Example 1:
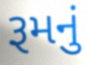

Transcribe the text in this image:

રૂમનું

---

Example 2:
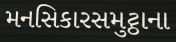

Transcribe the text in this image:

મનસિકારસમુટ્ઠાના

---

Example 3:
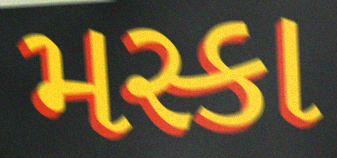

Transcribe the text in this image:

મસ્કા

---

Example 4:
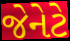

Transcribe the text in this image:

જેનેટે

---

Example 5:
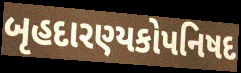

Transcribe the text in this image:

બૃહદારણ્યકોપનિષદ